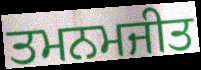
ਤਮਨਮਜੀਤ